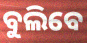
ବୁଲିବେ